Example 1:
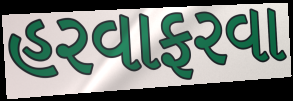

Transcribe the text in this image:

હરવાફરવા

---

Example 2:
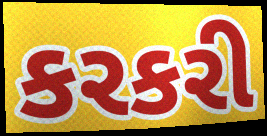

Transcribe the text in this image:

કરકરી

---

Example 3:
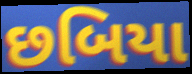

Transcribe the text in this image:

છબિયા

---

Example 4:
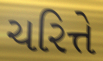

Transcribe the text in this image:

ચરિત્તે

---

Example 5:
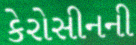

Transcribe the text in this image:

કેરોસીનની